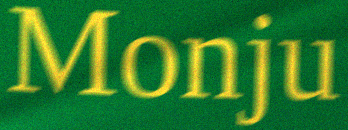
Monju